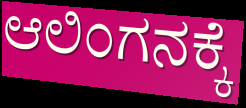
ಆಲಿಂಗನಕ್ಕೆ